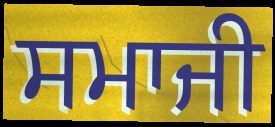
ਸਮਾਜੀ